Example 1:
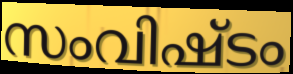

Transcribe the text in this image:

സംവിഷ്ടം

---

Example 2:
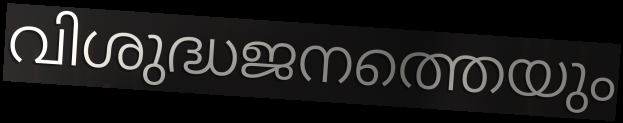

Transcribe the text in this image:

വിശുദ്ധജനത്തെയും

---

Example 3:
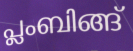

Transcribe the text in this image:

പ്ലംബിങ്ങ്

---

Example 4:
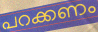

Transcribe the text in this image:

പറക്കണം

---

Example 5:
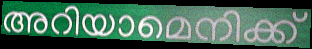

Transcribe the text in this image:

അറിയാമെനിക്ക്